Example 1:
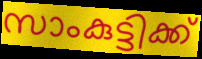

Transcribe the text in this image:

സാംകുട്ടിക്ക്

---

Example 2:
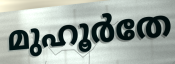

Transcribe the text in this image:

മുഹൂർതേ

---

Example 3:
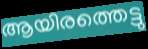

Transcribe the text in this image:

ആയിരത്തെട്ടു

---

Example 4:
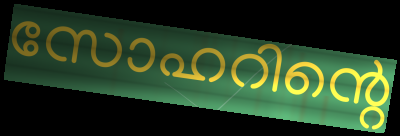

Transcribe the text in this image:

സോഹറിന്റെ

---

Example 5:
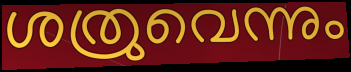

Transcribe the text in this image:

ശത്രുവെന്നും